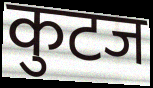
कुटज